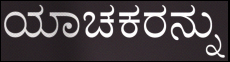
ಯಾಚಕರನ್ನು